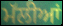
ਮੱਲੀਆਂ